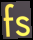
fs